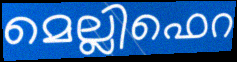
മെല്ലിഫെറ